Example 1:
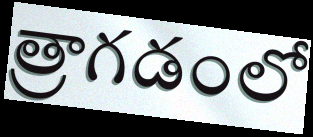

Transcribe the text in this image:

త్రాగడంలో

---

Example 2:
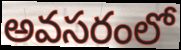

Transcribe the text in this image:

అవసరంలో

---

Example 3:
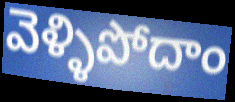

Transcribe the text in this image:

వెళ్ళిపోదాం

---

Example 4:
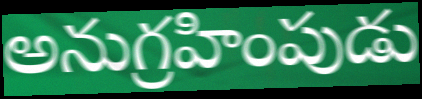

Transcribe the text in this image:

అనుగ్రహింపుడు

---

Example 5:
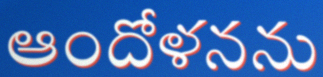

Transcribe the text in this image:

ఆందోళనను